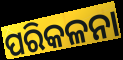
ପରିକଳନା